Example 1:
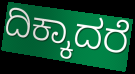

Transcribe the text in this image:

ದಿಕ್ಕಾದರೆ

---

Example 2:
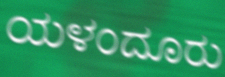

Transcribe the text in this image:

ಯಳಂದೂರು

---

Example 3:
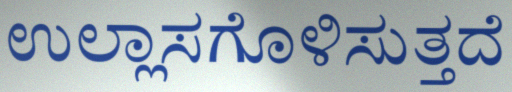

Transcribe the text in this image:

ಉಲ್ಲಾಸಗೊಳಿಸುತ್ತದೆ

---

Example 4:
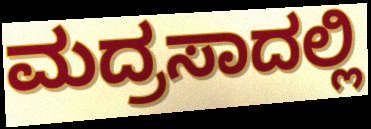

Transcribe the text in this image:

ಮದ್ರಸಾದಲ್ಲಿ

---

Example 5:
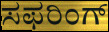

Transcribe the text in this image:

ಸಫರಿಂಗ್